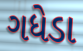
ગધેડા